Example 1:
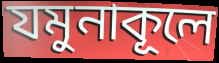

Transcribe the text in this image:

যমুনাকূলে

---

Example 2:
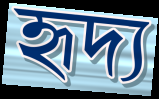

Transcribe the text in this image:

হৃদ্য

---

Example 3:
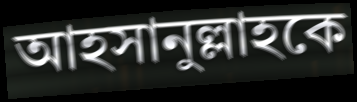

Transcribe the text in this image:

আহসানুল্লাহকে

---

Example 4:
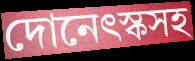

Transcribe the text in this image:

দোনেৎস্কসহ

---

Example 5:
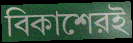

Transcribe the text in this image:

বিকাশেরই